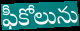
ఫీకోలును